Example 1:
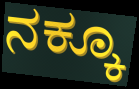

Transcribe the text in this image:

ನಕ್ಕೂ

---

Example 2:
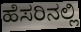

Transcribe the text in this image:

ಹೆಸರಿನಲ್ಲಿ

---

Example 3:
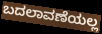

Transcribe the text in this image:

ಬದಲಾವಣೆಯಲ್ಲ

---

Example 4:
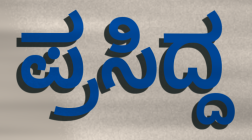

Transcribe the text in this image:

ಪ್ರಸಿದ್ದ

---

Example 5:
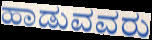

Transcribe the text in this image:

ಹಾಡುವವರು